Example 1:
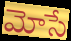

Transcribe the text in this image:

మోసే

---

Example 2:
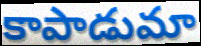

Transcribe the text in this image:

కాపాడుమా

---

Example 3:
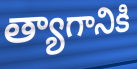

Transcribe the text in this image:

త్యాగానికి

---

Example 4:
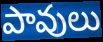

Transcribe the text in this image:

పావులు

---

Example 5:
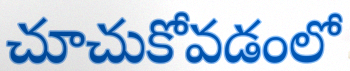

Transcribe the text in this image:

చూచుకోవడంలో